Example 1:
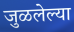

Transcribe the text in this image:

जुळलेल्या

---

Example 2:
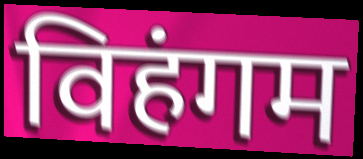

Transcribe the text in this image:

विहंगम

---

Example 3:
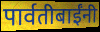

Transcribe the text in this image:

पार्वतीबाईंनी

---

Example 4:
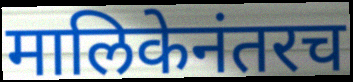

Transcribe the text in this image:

मालिकेनंतरच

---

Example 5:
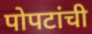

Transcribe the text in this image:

पोपटांची